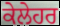
ਕੇਲੇਹਰ